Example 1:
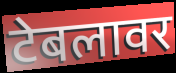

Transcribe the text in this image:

टेबलावर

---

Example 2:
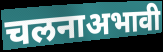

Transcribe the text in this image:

चलनाअभावी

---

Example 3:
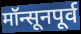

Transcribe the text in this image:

मॉन्सूनपूर्व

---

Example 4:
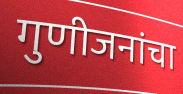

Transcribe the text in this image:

गुणीजनांचा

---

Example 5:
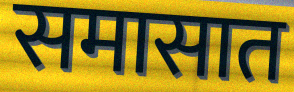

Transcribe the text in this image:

समासात